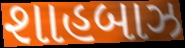
શાહબાઝ